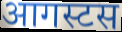
आगस्टस